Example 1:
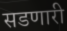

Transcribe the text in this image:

सडणारी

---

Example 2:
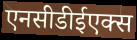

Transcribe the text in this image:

एनसीडीईएक्स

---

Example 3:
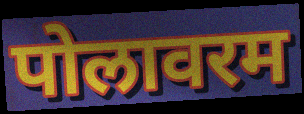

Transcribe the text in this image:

पोलावरम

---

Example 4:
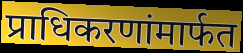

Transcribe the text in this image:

प्राधिकरणांमार्फत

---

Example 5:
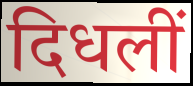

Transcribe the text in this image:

दिधलीं